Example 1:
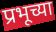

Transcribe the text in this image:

प्रभूच्या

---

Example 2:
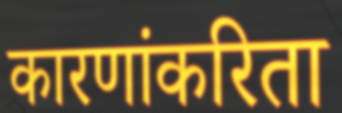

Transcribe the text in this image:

कारणांकरिता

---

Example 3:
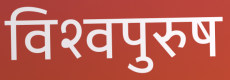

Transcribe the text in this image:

विश्वपुरुष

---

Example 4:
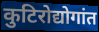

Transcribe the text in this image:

कुटिरोद्योगांत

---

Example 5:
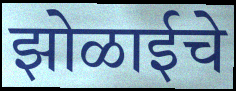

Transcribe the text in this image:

झोळाईचे